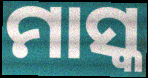
ମାସ୍କ